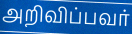
அறிவிப்பவர்